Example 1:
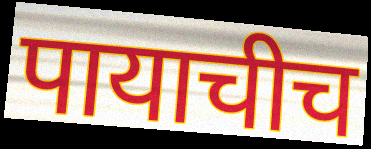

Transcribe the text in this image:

पायाचीच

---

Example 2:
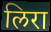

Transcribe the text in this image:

लिरा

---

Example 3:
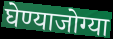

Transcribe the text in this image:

घेण्याजोग्या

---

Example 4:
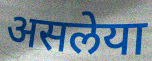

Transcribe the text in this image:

असलेया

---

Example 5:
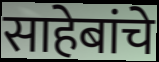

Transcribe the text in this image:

साहेबांचे